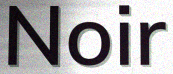
Noir